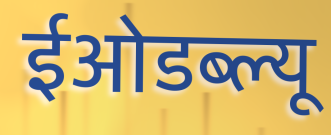
ईओडब्ल्यू